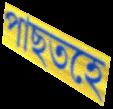
পাছতহে